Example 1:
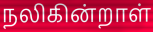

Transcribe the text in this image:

நலிகின்றாள்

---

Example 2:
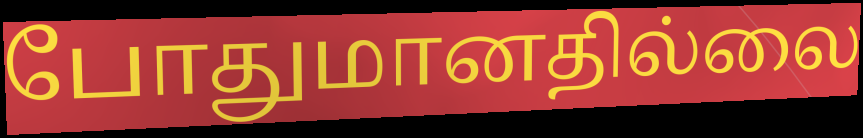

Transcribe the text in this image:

போதுமானதில்லை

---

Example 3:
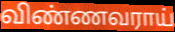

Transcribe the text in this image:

விண்ணவராய்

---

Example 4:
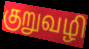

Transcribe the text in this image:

குறுவழி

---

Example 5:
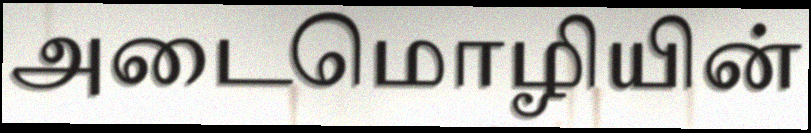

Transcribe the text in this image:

அடைமொழியின்